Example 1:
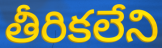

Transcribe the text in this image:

తీరికలేని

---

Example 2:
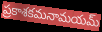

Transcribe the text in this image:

ప్రకాశకమనామయమ్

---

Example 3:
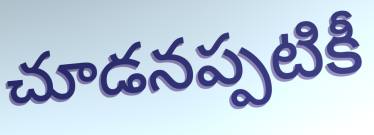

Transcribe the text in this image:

చూడనప్పటికీ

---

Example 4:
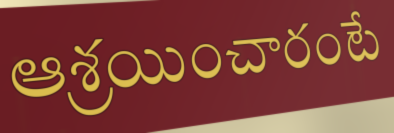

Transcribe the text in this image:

ఆశ్రయించారంటే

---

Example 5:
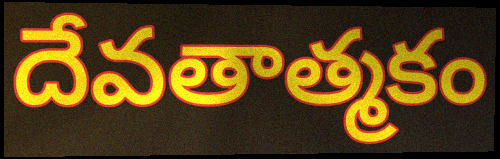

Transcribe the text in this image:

దేవతాత్మకం